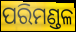
ପରିମଣ୍ଡଳ